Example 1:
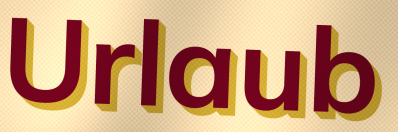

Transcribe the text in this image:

Urlaub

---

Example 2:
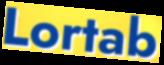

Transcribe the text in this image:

Lortab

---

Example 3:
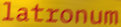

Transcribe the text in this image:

latronum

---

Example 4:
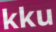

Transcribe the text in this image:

kku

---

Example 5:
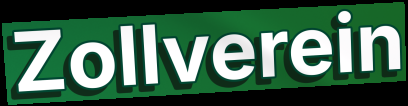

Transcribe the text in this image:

Zollverein